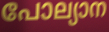
പോല്യാന